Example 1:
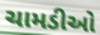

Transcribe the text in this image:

ચામડીઓ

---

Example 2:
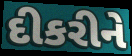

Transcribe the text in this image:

દીકરીને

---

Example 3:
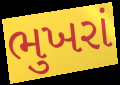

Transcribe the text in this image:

ભુખરાં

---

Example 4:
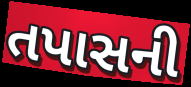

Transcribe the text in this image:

તપાસની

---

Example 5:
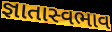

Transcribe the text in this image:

જ્ઞાતાસ્વભાવ